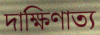
দাক্ষিণাত্য